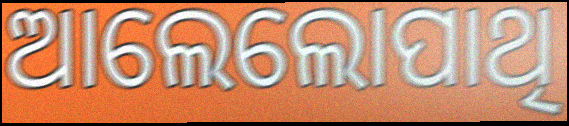
ଆଲେଲୋପାଥି